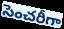
సెంచరీగా